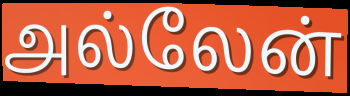
அல்லேன்